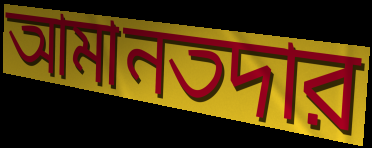
আমানতদার